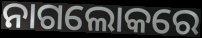
ନାଗଲୋକରେ